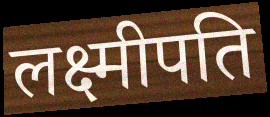
लक्ष्मीपति